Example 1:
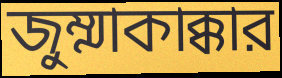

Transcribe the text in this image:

জুম্মাকাক্কার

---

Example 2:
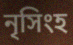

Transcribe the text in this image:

নৃসিংহ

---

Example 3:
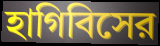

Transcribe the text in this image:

হাগিবিসের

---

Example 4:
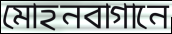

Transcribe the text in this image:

মোহনবাগানে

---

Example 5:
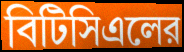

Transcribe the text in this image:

বিটিসিএলের